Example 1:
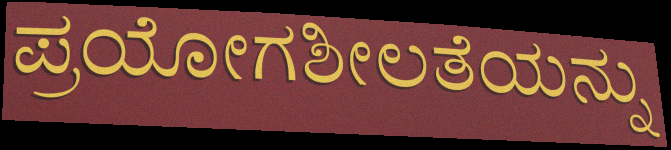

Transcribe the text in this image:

ಪ್ರಯೋಗಶೀಲತೆಯನ್ನು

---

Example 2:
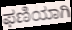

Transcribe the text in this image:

ಫಣಿಯಾಗಿ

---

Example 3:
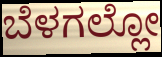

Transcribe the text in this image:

ಬೆಳಗಲ್ಲೋ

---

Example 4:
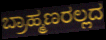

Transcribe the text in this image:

ಬ್ರಾಹ್ಮಣರಲ್ಲದ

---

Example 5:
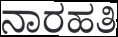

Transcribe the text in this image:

ನಾರಹತಿ